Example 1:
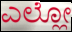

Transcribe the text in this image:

ಎಲ್ಲೋ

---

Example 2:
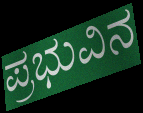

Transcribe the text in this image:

ಪ್ರಭುವಿನ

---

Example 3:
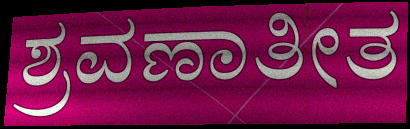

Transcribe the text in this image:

ಶ್ರವಣಾತೀತ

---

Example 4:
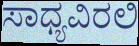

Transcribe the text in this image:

ಸಾಧ್ಯವಿರಲಿ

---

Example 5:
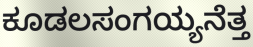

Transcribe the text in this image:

ಕೂಡಲಸಂಗಯ್ಯನೆತ್ತ